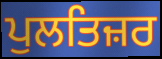
ਪੁਲਤਿਜ਼ਰ